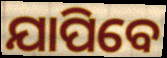
ଯାପିବେ